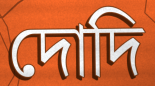
দোদি